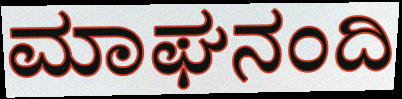
ಮಾಘನಂದಿ